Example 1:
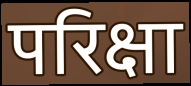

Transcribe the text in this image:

परिक्षा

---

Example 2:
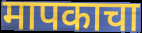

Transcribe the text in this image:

मापकाचा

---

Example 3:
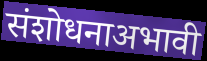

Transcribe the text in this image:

संशोधनाअभावी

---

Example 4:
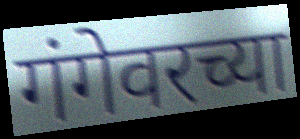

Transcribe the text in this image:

गंगेवरच्या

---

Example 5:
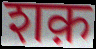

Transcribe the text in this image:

शक़